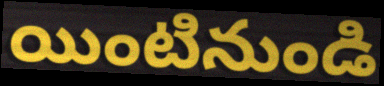
యింటినుండి